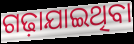
ଗଢ଼ାଯାଇଥିବା